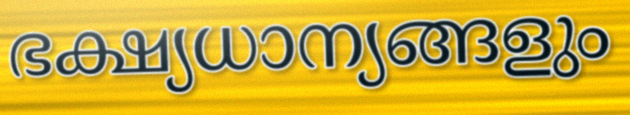
ഭക്ഷ്യധാന്യങ്ങളും